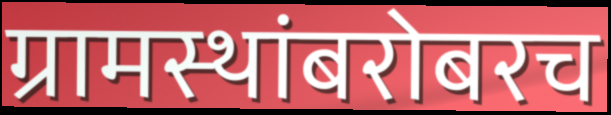
ग्रामस्थांबरोबरच